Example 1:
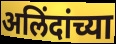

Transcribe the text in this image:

अलिंदांच्या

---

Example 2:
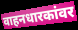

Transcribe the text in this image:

वाहनधारकांवर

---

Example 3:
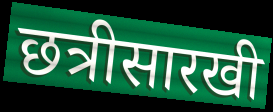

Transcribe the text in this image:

छत्रीसारखी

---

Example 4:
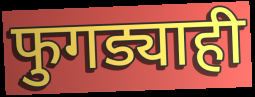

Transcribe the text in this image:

फुगड्याही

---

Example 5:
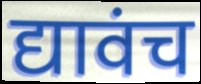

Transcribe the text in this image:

द्यावंच